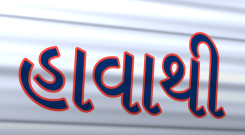
હાવાથી